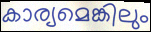
കാര്യമെങ്കിലും